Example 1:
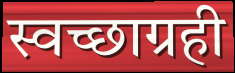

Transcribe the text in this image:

स्वच्छाग्रही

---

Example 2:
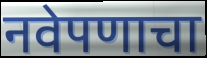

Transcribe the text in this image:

नवेपणाचा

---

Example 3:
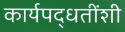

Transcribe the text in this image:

कार्यपद्धतींशी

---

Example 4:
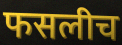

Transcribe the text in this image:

फसलीच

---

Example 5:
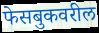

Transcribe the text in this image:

फेसबुकवरील